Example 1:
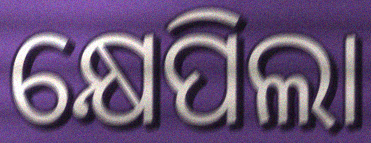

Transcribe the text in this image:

କ୍ଷେପିଲା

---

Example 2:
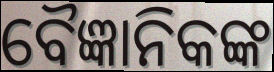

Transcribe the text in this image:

ବୈଜ୍ଞାନିକଙ୍କ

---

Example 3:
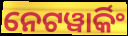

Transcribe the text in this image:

ନେଟୱାର୍କିଂ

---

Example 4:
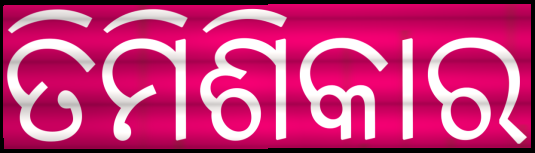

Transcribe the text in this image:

ତିମିଶିକାର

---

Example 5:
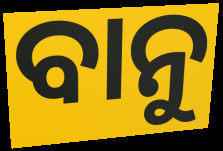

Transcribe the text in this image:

ବାନୁ